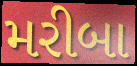
મરીબા